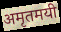
अमृतमयी